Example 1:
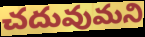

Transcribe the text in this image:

చదువుమని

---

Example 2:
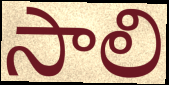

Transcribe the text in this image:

సాలి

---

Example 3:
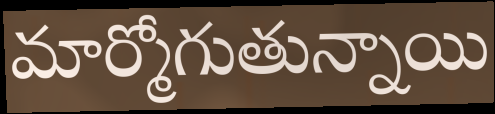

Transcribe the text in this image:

మార్మోగుతున్నాయి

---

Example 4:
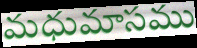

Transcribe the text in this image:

మధుమాసము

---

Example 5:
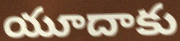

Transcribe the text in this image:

యూదాకు